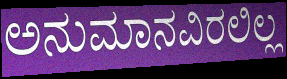
ಅನುಮಾನವಿರಲಿಲ್ಲ